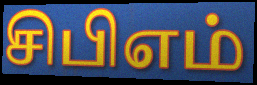
சிபிஎம்